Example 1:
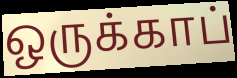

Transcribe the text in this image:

ஒருக்காப்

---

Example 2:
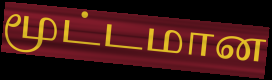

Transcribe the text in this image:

மூட்டமான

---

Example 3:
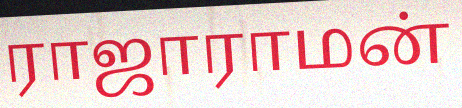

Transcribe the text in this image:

ராஜாராமன்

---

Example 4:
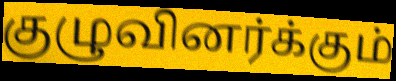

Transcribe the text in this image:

குழுவினர்க்கும்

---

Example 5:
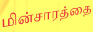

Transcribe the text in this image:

மின்சாரத்தை